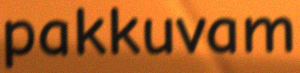
pakkuvam